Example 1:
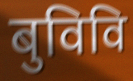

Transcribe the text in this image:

बुविवि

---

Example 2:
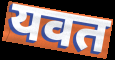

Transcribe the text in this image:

यवत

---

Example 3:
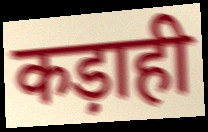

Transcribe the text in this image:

कड़ाही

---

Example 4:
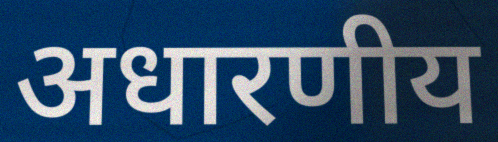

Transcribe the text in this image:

अधारणीय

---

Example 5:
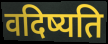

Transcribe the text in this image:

वदिष्यति